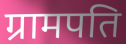
ग्रामपति